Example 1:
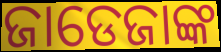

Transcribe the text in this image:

ଜାଡେଜାଙ୍କ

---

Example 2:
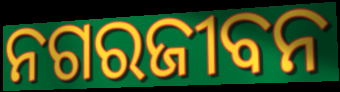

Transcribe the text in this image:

ନଗରଜୀବନ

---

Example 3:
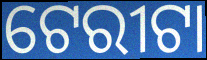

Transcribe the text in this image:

ଟେରୀଟା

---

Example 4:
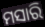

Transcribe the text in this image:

ମସାରି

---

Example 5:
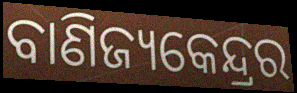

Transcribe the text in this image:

ବାଣିଜ୍ୟକେନ୍ଦ୍ରର